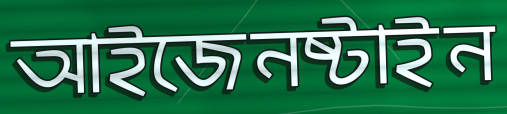
আইজেনষ্টাইন